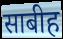
साबीह